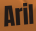
Aril